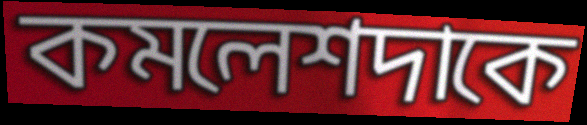
কমলেশদাকে